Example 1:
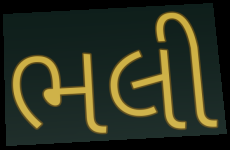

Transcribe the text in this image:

ભલી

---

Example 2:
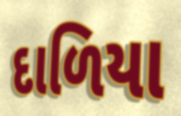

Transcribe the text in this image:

દાળિયા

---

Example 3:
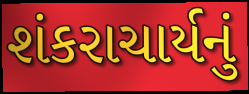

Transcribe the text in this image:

શંકરાચાર્યનું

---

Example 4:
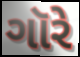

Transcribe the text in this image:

ગૉરે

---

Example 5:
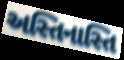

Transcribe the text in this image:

અસ્તિનાસ્તિ